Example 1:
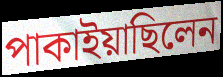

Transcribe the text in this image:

পাকাইয়াছিলেন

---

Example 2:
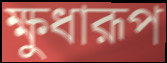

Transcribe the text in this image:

ক্ষুধারূপ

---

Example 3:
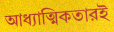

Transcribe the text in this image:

আধ্যাত্মিকতারই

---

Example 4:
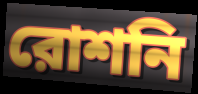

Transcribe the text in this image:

রোশনি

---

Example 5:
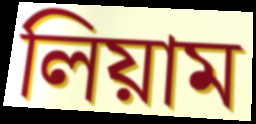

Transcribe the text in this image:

লিয়াম